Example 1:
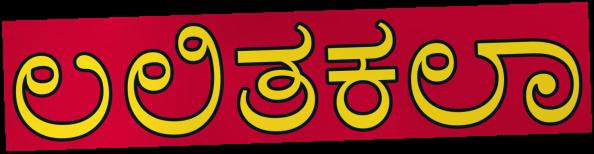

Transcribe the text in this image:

ಲಲಿತಕಲಾ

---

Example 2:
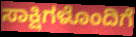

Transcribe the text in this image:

ಸಾಕ್ಷಿಗಳೊಂದಿಗೆ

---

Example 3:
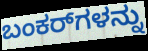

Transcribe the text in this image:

ಬಂಕರ್‌ಗಳನ್ನು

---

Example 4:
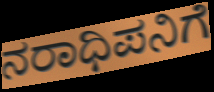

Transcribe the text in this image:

ನರಾಧಿಪನಿಗೆ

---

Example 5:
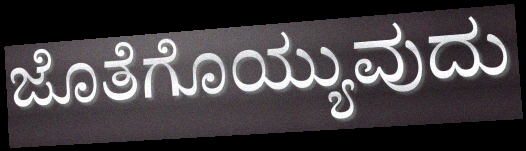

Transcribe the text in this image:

ಜೊತೆಗೊಯ್ಯುವುದು